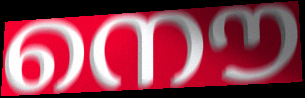
നൌ